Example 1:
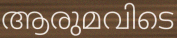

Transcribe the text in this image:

ആരുമവിടെ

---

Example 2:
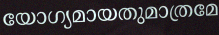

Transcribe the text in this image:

യോഗ്യമായതുമാത്രമേ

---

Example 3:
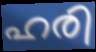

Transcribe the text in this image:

ഹരി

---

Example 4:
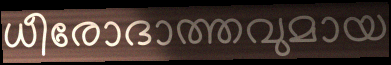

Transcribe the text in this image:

ധീരോദാത്തവുമായ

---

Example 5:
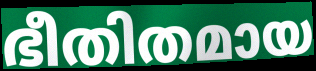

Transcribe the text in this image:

ഭീതിതമായ